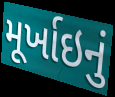
મૂર્ખાઇનું